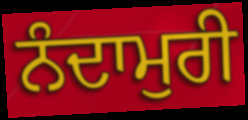
ਨੰਦਾਮੁਰੀ